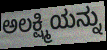
ಅಲಕ್ಷ್ಮಿಯನ್ನು